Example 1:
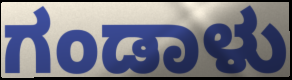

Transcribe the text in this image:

ಗಂಡಾಳು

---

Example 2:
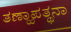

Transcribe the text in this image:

ತಣ್ಹಾಪತ್ಥನಾ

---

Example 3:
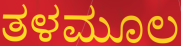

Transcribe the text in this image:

ತಳಮೂಲ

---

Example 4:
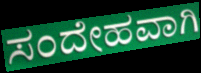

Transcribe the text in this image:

ಸಂದೇಹವಾಗಿ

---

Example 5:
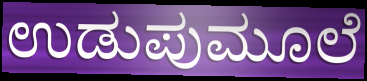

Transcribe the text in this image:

ಉಡುಪುಮೂಲೆ